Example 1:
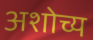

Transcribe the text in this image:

अशोच्य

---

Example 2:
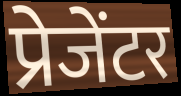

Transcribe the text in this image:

प्रेजेंटर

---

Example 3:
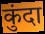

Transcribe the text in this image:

कुंदा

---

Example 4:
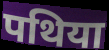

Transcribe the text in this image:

पथिया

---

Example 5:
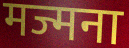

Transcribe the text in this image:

मज्मना